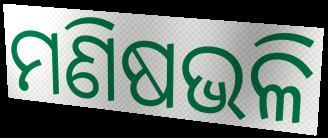
ମଣିଷଭଳି